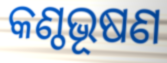
କଣ୍ଠଭୂଷଣ